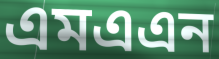
এমএএন